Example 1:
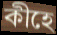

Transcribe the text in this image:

কীহে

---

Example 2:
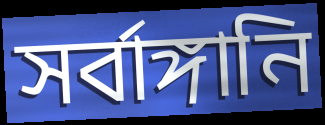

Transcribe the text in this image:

সর্বাঙ্গানি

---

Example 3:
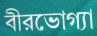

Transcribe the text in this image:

বীরভোগ্যা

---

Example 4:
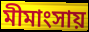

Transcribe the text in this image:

মীমাংসায়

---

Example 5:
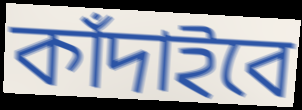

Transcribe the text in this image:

কাঁদাইবে